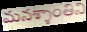
మనశ్శాంతిని